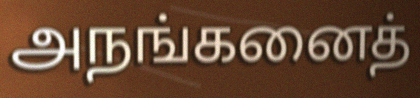
அநங்கனைத்